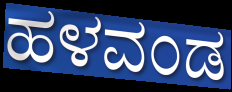
ಹಳವಂಡ